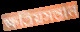
ক্ষত্রিয়সন্তান